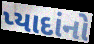
પ્યાદાંનો